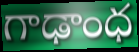
గాఢాంధ